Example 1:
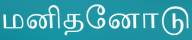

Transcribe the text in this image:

மனிதனோடு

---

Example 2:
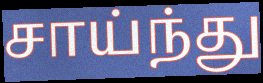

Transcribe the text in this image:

சாய்ந்து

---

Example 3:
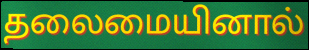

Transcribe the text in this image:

தலைமையினால்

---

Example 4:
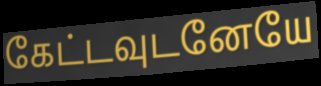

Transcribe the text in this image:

கேட்டவுடனேயே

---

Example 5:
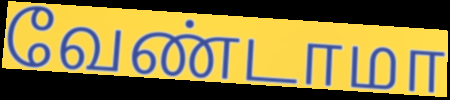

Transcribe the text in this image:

வேண்டாமா